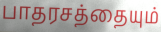
பாதரசத்தையும்